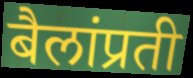
बैलांप्रती